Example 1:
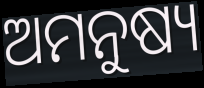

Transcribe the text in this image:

ଅମନୁଷ୍ୟ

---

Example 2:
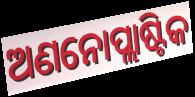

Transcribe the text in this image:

ଅଣନୋପ୍ଲାଷ୍ଟିକ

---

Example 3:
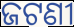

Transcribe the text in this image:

ଜଟଣୀ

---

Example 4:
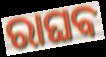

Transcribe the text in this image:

ରାଘବ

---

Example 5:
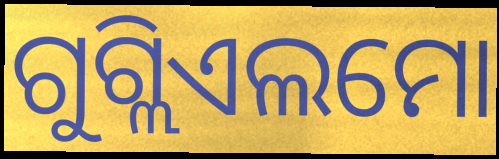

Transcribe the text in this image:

ଗୁଗ୍ଲିଏଲମୋ